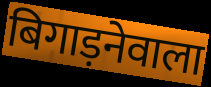
बिगाड़नेवाला